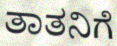
ತಾತನಿಗೆ